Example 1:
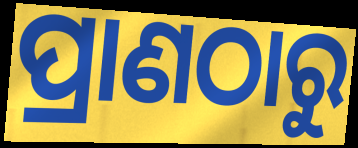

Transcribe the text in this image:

ପ୍ରାଣଠାରୁ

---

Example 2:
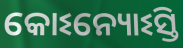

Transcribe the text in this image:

କୋଽନ୍ୟୋଽସ୍ତି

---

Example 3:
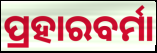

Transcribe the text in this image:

ପ୍ରହାରବର୍ମା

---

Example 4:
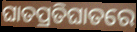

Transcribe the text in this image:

ଘାତପ୍ରତିଘାତରେ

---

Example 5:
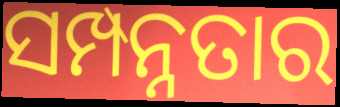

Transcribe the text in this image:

ସମ୍ପନ୍ନତାର